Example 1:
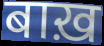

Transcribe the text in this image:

बाख़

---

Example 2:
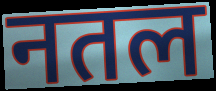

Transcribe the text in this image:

नतल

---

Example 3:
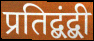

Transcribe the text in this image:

प्रतिद्बंद्बी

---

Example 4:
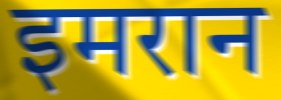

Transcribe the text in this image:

इमरान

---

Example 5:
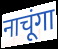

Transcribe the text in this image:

नाचूंगा